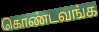
கொண்டவங்க